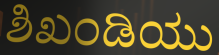
ಶಿಖಂಡಿಯು